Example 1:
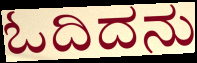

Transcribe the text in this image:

ಓದಿದನು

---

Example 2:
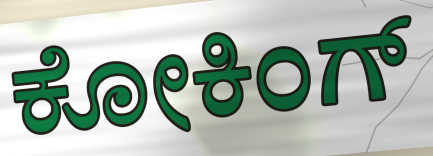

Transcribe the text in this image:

ಕೋಕಿಂಗ್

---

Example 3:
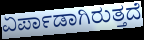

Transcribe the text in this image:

ಏರ್ಪಾಡಾಗಿರುತ್ತದೆ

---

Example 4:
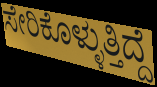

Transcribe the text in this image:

ಸೇರಿಕೊಳ್ಳುತ್ತಿದ್ದೆ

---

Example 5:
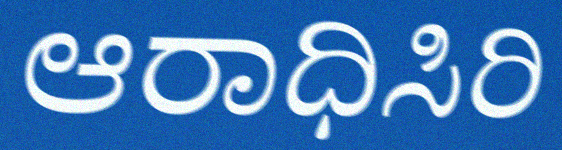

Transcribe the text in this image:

ಆರಾಧಿಸಿರಿ